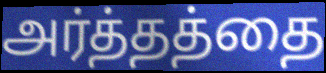
அர்த்தத்தை